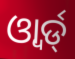
ଓ୍ୱାର୍ଡ୍